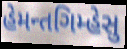
હેમન્તગિમ્હેસુ